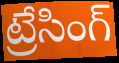
ట్రేసింగ్